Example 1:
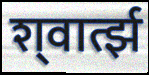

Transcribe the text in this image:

श्वार्त्झ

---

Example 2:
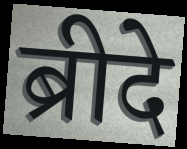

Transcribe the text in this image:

ब्रीदे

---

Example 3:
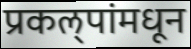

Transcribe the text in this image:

प्रकल्पांमधून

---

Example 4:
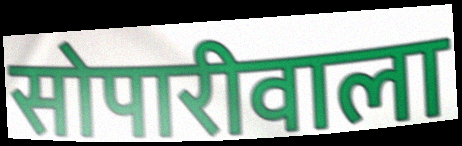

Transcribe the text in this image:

सोपारीवाला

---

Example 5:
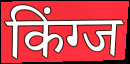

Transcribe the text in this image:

किंग्ज